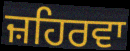
ਜ਼ਹਿਰਵਾ